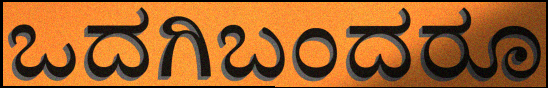
ಒದಗಿಬಂದರೂ